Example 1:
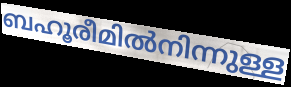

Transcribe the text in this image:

ബഹൂരീമിൽനിന്നുള്ള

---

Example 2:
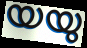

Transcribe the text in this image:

യയു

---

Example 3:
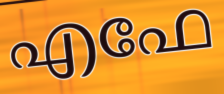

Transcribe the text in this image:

എഫേ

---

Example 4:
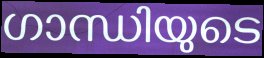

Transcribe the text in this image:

ഗാന്ധിയുടെ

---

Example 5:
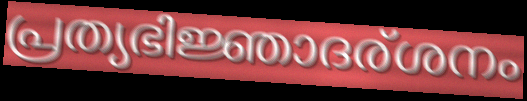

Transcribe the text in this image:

പ്രത്യഭിജ്ഞാദര്ശനം